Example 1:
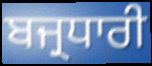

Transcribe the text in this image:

ਬਜ੍ਰਧਾਰੀ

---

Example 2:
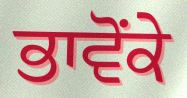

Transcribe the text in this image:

ਭਾਵੋਂਕੇ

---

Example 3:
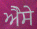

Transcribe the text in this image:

ਐੇਸੇ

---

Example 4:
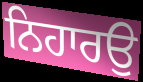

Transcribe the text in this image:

ਨਿਹਾਰਉ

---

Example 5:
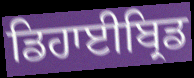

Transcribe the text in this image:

ਡਿਹਾਈਬ੍ਰਿਡ